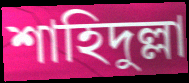
শাহিদুল্লা